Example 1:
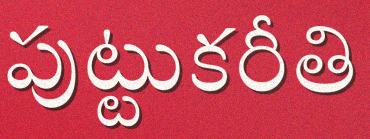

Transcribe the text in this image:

పుట్టుకరీతి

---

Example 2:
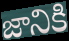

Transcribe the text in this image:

జానికి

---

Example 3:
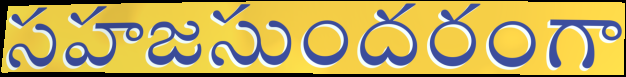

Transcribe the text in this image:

సహజసుందరంగా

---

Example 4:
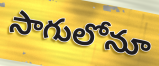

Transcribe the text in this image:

సాగులోనూ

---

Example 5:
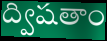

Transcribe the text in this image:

ద్విషతాం